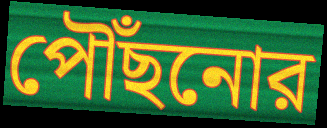
পৌঁছনোর